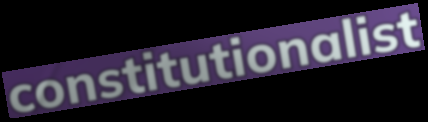
constitutionalist